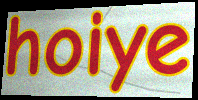
hoiye